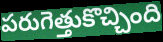
పరుగెత్తుకొచ్చింది